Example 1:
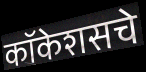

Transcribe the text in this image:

कॉकेशसचे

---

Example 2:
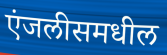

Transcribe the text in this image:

एंजलीसमधील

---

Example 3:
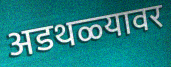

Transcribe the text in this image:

अडथळ्यावर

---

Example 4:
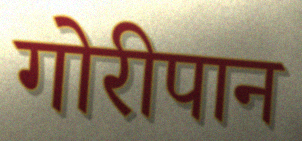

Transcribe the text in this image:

गोरीपान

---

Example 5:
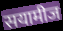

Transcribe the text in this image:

सयामीज